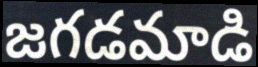
జగడమాడి